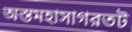
অস্তমহাসাগরতট